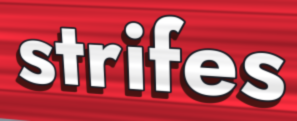
strifes